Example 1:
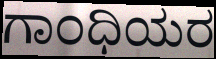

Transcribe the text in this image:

ಗಾಂಧಿಯರ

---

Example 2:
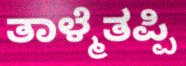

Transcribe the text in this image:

ತಾಳ್ಮೆತಪ್ಪಿ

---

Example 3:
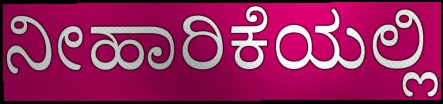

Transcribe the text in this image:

ನೀಹಾರಿಕೆಯಲ್ಲಿ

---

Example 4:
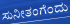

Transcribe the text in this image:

ಸುನೀತಂಗೆಂದು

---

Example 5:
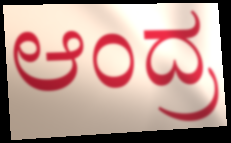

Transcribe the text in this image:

ಆಂದ್ರ